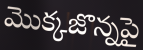
మొక్కజొన్నపై